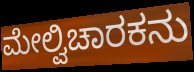
ಮೇಲ್ವಿಚಾರಕನು